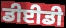
ਡੀਈਡੀ